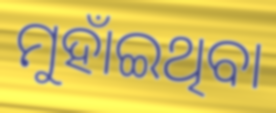
ମୁହାଁଇଥିବା